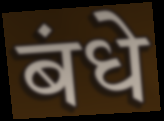
बंधे